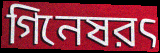
গিনেষরৎ